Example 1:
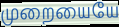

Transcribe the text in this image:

முறையையே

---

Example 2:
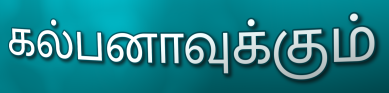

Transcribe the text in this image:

கல்பனாவுக்கும்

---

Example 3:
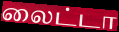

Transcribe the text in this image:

லைட்டா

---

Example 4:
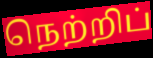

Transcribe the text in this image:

நெற்றிப்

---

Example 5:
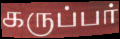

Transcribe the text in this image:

கருப்பர்